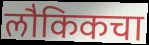
लौकिकचा